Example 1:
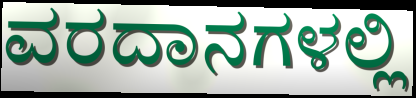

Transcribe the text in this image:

ವರದಾನಗಳಲ್ಲಿ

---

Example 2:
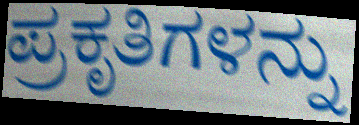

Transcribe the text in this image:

ಪ್ರಕೃತಿಗಳನ್ನು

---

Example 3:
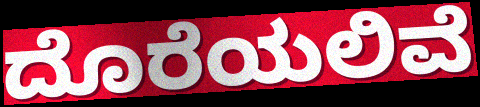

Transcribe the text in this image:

ದೊರೆಯಲಿವೆ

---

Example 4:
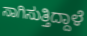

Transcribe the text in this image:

ಸಾಗಿಸುತ್ತಿದ್ದಾಳೆ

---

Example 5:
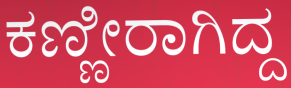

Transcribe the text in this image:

ಕಣ್ಣೀರಾಗಿದ್ದ